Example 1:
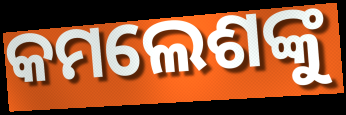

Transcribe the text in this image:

କମଲେଶଙ୍କୁ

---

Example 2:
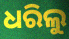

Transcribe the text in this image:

ଧରିଲୁ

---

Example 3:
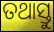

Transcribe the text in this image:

ତଥାସ୍ତୁ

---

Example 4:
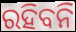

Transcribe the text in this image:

ରହିବନି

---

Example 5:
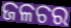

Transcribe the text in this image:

ଜଳଚର